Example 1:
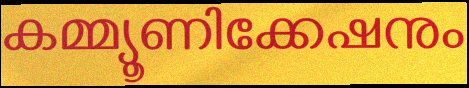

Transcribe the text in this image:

കമ്മ്യൂണിക്കേഷനും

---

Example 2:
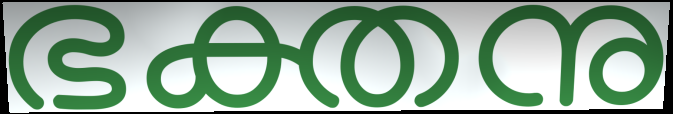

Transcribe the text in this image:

ഭക്തനു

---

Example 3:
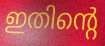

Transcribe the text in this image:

ഇതിന്റെ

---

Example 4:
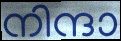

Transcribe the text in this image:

നിന്ദാ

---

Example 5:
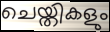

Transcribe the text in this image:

ചെയ്തികളും